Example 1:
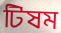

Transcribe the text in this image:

টিষম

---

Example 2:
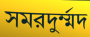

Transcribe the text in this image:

সমরদুর্ম্মদ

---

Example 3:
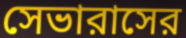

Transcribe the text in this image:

সেভারাসের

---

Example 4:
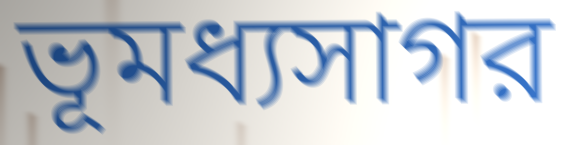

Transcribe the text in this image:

ভূমধ্যসাগর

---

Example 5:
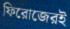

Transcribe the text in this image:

ফিরোজেরই